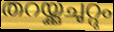
തറയ്ക്കുചുറ്റും